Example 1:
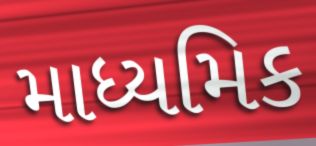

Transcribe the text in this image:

માધ્યમિક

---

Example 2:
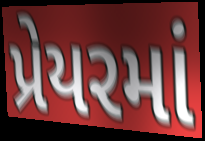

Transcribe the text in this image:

પ્રેયરમાં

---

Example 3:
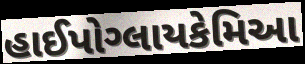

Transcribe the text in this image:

હાઈપોગ્લાયકેમિઆ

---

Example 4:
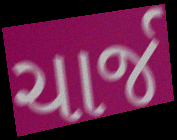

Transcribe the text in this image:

ચાર્જ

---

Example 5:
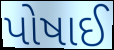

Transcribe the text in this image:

પોષાઈ